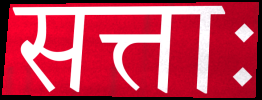
सत्ताः